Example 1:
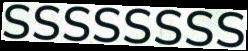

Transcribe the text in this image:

SSSSSSSS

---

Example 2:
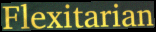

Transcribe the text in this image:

Flexitarian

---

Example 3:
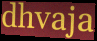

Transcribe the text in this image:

dhvaja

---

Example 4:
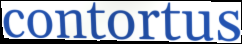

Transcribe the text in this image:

contortus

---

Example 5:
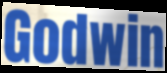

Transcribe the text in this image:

Godwin